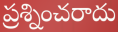
ప్రశ్నించరాదు